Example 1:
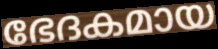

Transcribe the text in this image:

ഭേദകമായ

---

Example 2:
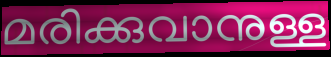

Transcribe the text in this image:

മരിക്കുവാനുള്ള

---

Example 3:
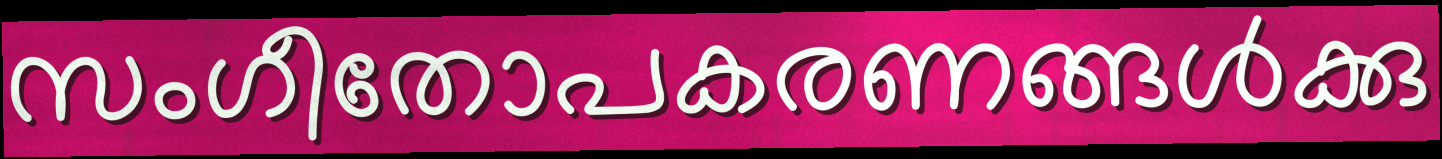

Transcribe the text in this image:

സംഗീതോപകരണങ്ങൾക്കു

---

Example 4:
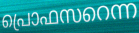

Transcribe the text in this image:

പ്രൊഫസറെന്ന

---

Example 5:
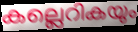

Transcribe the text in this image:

കല്ലെറികയും